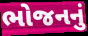
ભોજનનું